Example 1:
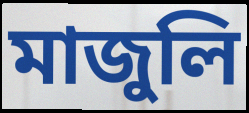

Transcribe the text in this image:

মাজুলি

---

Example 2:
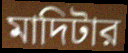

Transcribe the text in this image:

মাদিটার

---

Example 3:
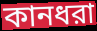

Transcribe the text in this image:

কানধরা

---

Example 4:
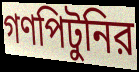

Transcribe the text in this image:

গণপিটুনির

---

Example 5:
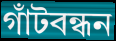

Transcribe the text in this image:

গাঁটবন্ধন